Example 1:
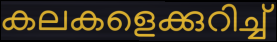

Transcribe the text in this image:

കലകളെക്കുറിച്ച്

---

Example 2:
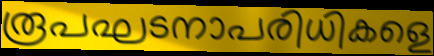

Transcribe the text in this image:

രൂപഘടനാപരിധികളെ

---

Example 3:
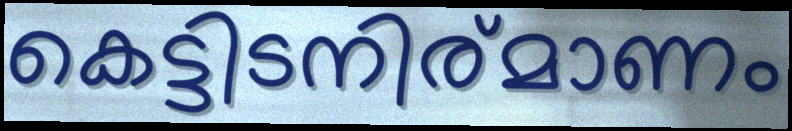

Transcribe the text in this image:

കെട്ടിടനിര്മാണം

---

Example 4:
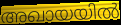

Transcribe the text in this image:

അഖായയിൽ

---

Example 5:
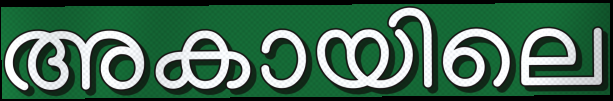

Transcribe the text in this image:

അകായിലെ